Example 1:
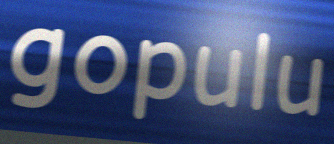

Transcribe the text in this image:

gopulu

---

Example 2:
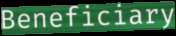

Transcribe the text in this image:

Beneficiary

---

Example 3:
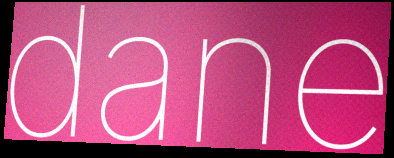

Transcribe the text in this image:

dane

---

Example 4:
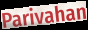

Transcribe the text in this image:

Parivahan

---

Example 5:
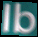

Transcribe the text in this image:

Ib